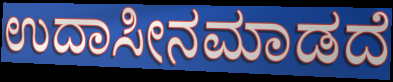
ಉದಾಸೀನಮಾಡದೆ